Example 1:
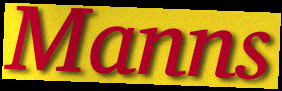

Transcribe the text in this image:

Manns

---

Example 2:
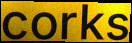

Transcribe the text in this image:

corks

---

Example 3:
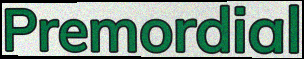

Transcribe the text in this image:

Premordial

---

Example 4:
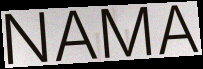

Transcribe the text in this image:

NAMA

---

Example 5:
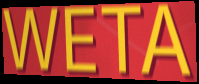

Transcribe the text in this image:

WETA